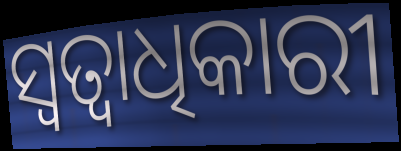
ସ୍ବତ୍ବାଧିକାରୀ